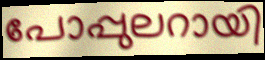
പോപ്പുലറായി